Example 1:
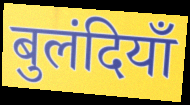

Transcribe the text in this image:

बुलंदियाँ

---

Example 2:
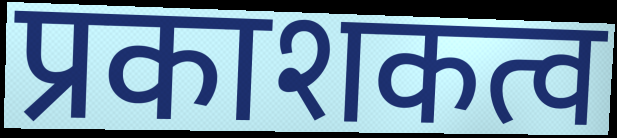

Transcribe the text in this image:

प्रकाशकत्व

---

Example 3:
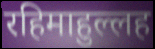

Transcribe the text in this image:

रहिमाहुल्लह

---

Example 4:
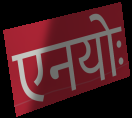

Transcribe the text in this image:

एनयोः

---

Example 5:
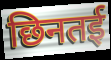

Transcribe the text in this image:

छिनतई